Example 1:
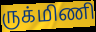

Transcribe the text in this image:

ருக்மிணி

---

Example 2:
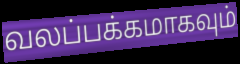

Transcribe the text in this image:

வலப்பக்கமாகவும்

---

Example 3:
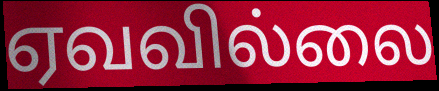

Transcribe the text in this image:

ஏவவில்லை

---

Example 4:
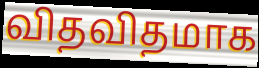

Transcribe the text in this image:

விதவிதமாக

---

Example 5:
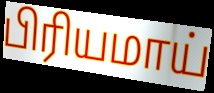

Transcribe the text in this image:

பிரியமாய்